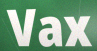
Vax